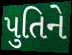
પુતિને